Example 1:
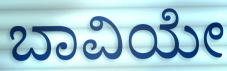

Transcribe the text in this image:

ಬಾವಿಯೇ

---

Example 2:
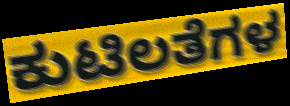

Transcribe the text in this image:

ಕುಟಿಲತೆಗಳ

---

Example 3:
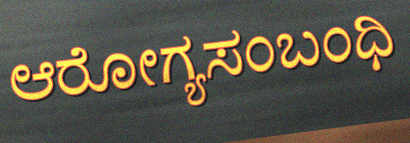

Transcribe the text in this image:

ಆರೋಗ್ಯಸಂಬಂಧಿ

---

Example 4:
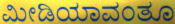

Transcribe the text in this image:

ಮೀಡಿಯಾವಂತೂ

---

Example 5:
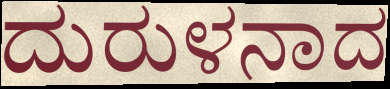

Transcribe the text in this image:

ದುರುಳನಾದ